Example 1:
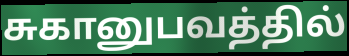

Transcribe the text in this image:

சுகானுபவத்தில்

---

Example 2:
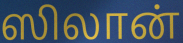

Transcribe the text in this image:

ஸிலான்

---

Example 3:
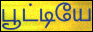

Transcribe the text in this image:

பூட்டியே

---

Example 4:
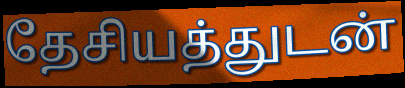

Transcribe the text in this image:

தேசியத்துடன்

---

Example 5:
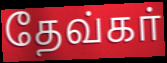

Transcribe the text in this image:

தேவ்கர்